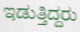
ಇಡುತ್ತಿದ್ದರು